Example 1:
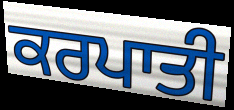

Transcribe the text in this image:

ਕਰਪਾਤੀ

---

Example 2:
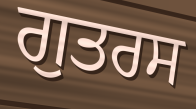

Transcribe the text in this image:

ਗੁਤਰਸ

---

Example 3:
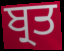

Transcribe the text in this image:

ਬ੍ਰਤ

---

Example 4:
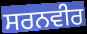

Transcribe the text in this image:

ਸਰਨਵੀਰ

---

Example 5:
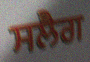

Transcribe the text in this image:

ਸਲੈਗ